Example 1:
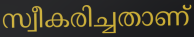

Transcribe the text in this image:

സ്വീകരിച്ചതാണ്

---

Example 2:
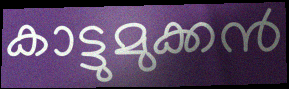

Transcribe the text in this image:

കാട്ടുമുക്കൻ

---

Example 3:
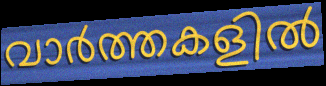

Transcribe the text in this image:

വാർത്തകളിൽ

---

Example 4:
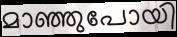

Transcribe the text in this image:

മാഞ്ഞുപോയി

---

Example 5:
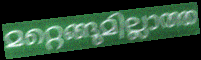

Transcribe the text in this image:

മറ്റെങ്ങുമില്ലാത്ത